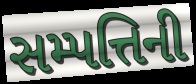
સમ્પત્તિની